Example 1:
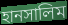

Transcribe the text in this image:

হানসালিম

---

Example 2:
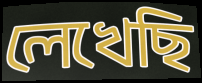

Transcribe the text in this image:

লেখেছি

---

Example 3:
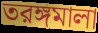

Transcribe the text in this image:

তরঙ্গমালা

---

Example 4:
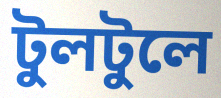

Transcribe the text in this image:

টুলটুলে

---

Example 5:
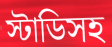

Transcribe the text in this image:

স্টাডিসহ